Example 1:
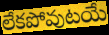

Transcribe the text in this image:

లేకపోవుటయే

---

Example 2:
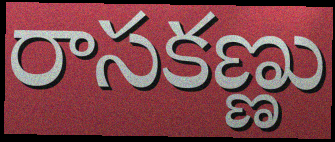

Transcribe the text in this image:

రాసకణ్ణు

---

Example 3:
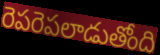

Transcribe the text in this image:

రెపరెపలాడుతోంది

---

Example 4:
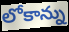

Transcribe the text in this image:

లోకాన్ను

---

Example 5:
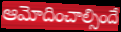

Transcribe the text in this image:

ఆమోదించాల్సిందే